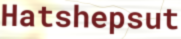
Hatshepsut